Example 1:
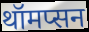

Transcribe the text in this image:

थॉमप्सन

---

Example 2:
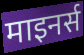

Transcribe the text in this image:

माइनर्स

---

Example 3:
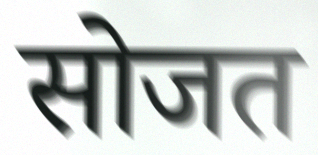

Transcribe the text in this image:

सोजत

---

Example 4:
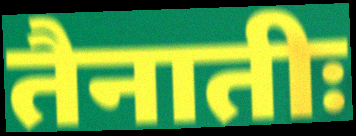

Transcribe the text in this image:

तैनातीः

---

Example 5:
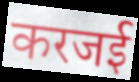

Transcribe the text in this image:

करजई